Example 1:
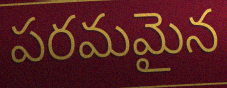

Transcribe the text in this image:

పరమమైన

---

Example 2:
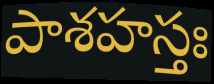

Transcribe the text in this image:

పాశహస్తః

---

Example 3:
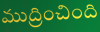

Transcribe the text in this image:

ముద్రించింది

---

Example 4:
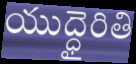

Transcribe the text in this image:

యుద్ధైరితి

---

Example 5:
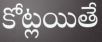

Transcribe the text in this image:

కోట్లయితే